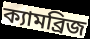
ক্যামব্রিজ